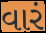
વારં